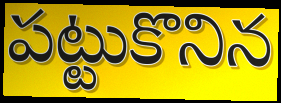
పట్టుకొనిన